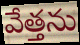
వేత్తను